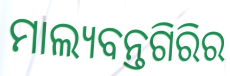
ମାଲ୍ୟବନ୍ତଗିରିର